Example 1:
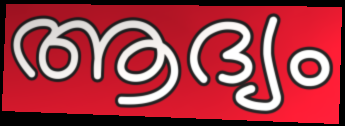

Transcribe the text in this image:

ആദ്യം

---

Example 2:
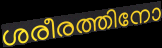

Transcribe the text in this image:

ശരീരത്തിനോ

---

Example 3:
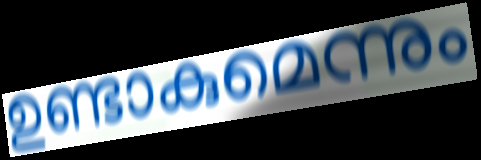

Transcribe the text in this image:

ഉണ്ടാകുമെന്നും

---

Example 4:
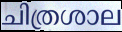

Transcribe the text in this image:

ചിത്രശാല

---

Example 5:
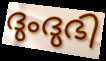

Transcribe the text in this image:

ദുംദുഭി